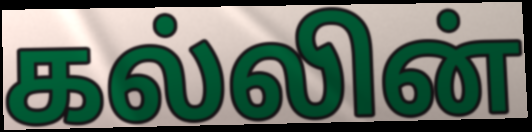
கல்லின்